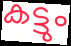
കട്ടും